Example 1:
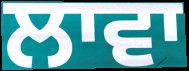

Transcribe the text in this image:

ਲਾਵਾ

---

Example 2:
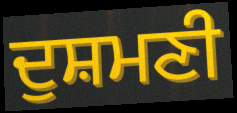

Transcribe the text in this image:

ਦੁਸ਼ਮਣੀ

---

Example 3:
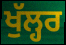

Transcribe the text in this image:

ਖੁੱਲ੍ਹਰ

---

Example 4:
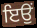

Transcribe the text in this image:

ਇਉਂ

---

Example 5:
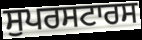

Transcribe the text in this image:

ਸੁਪਰਸਟਾਰਸ